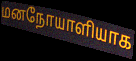
மனநோயாளியாக